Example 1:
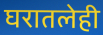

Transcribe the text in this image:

घरातलेही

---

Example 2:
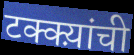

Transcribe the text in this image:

टक्क्य़ांची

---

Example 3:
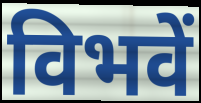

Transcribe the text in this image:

विभवें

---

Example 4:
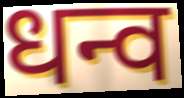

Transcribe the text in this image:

धन्व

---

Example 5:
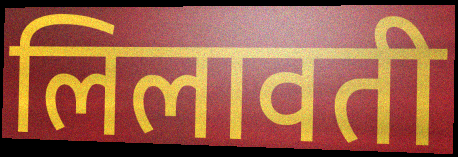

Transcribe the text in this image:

लिलावती